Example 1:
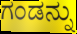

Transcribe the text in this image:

ಗಂಡನ್ನು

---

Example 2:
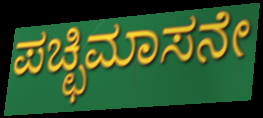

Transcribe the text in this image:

ಪಚ್ಛಿಮಾಸನೇ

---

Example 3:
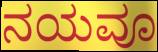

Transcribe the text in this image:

ನಯವೂ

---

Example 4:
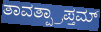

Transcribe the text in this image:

ತಾವತ್ಪ್ರಾಪ್ತಮ್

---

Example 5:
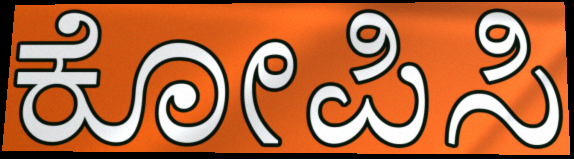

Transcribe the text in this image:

ಕೋಪಿಸಿ